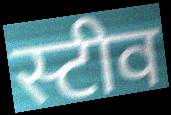
स्‍टीव